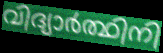
വിദ്യാർത്ഥിനി